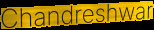
Chandreshwar